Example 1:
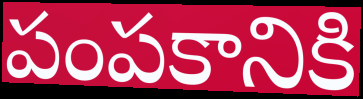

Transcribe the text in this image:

పంపకానికి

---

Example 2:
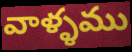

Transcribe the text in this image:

వాళ్ళము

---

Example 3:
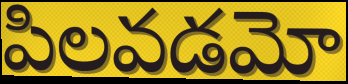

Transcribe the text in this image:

పిలవడమో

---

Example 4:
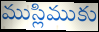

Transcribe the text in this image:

ముస్లిముకు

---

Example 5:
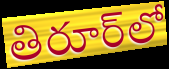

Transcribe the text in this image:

తిరూర్‌లో